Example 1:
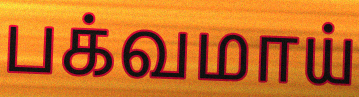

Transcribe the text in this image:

பக்வமாய்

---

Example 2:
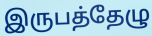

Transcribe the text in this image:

இருபத்தேழு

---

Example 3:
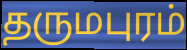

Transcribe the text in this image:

தருமபுரம்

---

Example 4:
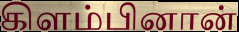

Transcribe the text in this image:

கிளம்பினான்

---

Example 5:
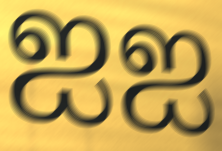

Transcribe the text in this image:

ஐஐ